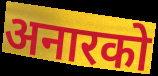
अनारको